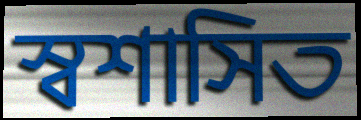
স্বশাসিত